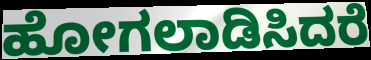
ಹೋಗಲಾಡಿಸಿದರೆ